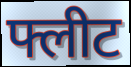
फ्लीट